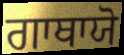
ਗਾਥਾਯੋ